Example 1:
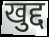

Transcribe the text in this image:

खुद्द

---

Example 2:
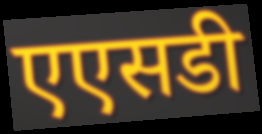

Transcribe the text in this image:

एएसडी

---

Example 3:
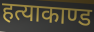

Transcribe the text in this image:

हत्याकाण्ड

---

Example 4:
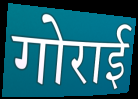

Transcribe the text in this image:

गोराई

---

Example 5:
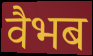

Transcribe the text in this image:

वैभब